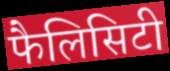
फैलिसिटी